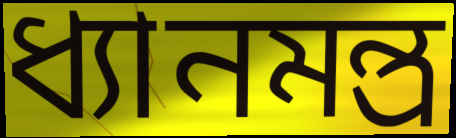
ধ্যানমন্ত্ৰ